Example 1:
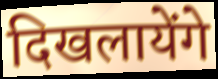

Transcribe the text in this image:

दिखलायेंगे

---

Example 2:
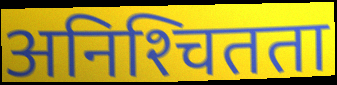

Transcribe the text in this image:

अनिश्चितता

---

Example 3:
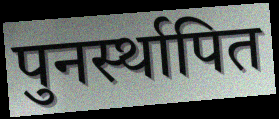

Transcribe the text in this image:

पुनर्स्‍थापित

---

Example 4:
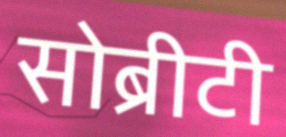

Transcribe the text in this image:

सोब्रीटी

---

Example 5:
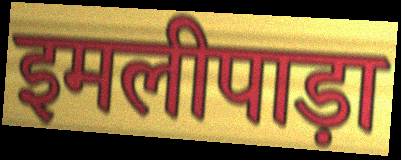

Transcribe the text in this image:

इमलीपाड़ा